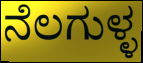
ನೆಲಗುಳ್ಳ